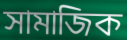
সামাজিক